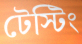
টেস্টিং